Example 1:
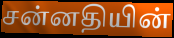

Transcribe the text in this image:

சன்னதியின்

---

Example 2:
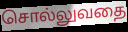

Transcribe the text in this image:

சொல்லுவதை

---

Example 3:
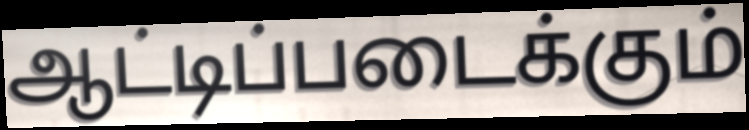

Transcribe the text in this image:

ஆட்டிப்படைக்கும்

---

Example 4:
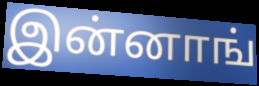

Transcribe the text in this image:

இன்னாங்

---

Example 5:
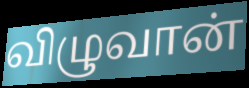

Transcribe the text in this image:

விழுவான்